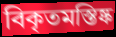
বিকৃতমস্তিষ্ক